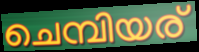
ചെമ്പിയര്